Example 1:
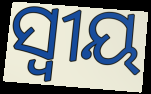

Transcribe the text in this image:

ସ୍ବୀୟ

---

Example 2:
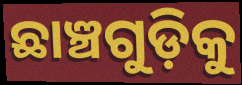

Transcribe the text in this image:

ଛାଞ୍ଚଗୁଡ଼ିକୁ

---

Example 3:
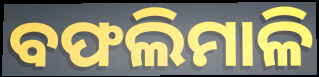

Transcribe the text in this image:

ବଫଲିମାଳି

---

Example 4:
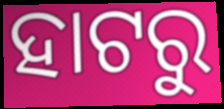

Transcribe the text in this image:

ହାଟରୁ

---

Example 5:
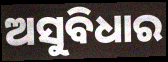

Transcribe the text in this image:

ଅସୁବିଧାର